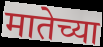
मातेच्या